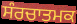
ਸੰਰਚਾਤਮਕ